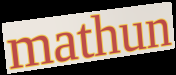
mathun